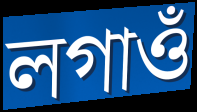
লগাওঁ